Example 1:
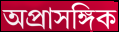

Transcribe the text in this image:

অপ্রাসঙ্গিক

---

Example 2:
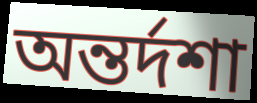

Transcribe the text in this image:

অন্তর্দশা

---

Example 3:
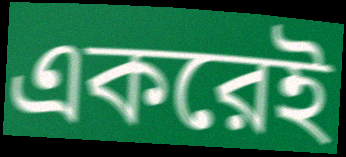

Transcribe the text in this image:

একরেই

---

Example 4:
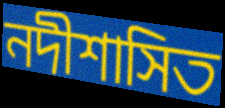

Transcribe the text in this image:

নদীশাসিত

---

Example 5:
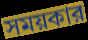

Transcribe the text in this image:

সময়কার